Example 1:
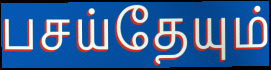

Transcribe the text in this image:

பசய்தேயும்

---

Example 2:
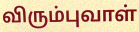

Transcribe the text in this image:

விரும்புவாள்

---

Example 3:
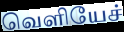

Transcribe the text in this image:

வெளியேச்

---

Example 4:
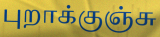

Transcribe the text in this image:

புறாக்குஞ்சு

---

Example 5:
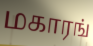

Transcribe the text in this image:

மகாரங்